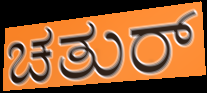
ಚತುರ್